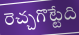
రెచ్చగొట్టేది